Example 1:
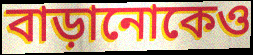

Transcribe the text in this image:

বাড়ানোকেও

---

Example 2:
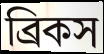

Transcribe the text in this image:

ব্রিকস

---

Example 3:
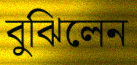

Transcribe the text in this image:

বুঝিলেন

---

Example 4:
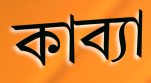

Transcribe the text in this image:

কাব্যা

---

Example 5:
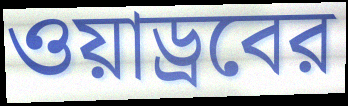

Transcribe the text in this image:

ওয়াড্রবের